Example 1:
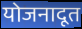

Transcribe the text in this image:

योजनादूत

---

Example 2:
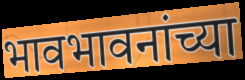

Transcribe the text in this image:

भावभावनांच्या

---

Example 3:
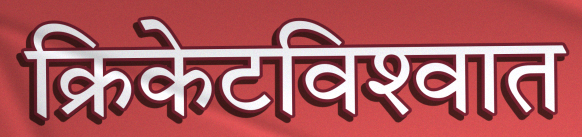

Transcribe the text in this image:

क्रिकेटविश्‍वात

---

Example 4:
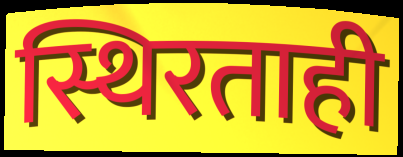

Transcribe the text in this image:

स्थिरताही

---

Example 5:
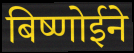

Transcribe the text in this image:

बिष्णोईने